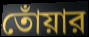
তোঁয়ার